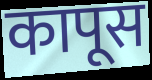
कापूस